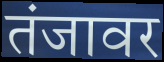
तंजावर